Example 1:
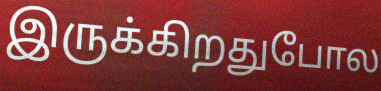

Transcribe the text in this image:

இருக்கிறதுபோல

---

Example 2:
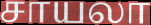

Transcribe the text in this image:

சாயலா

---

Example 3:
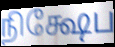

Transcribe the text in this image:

நிக்ஷேப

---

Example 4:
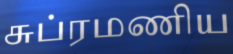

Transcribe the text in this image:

சுப்ரமணிய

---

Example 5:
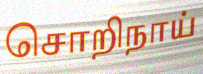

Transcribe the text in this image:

சொறிநாய்